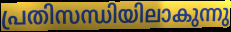
പ്രതിസന്ധിയിലാകുന്നു